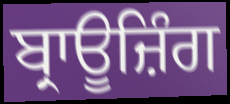
ਬ੍ਰਾਊਜ਼ਿੰਗ